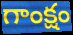
గాంక్షం